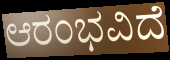
ಆರಂಭವಿದೆ